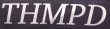
THMPD